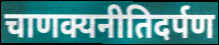
चाणक्यनीतिदर्पण